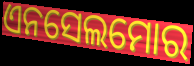
ଏନସେଲମୋର